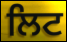
ਲਿਟ